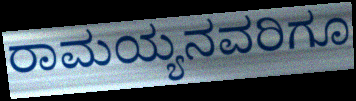
ರಾಮಯ್ಯನವರಿಗೂ